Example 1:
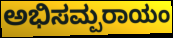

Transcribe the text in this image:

ಅಭಿಸಮ್ಪರಾಯಂ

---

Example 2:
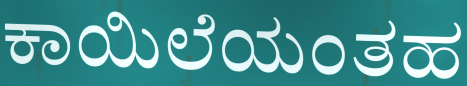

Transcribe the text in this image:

ಕಾಯಿಲೆಯಂತಹ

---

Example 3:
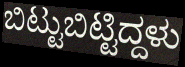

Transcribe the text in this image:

ಬಿಟ್ಟುಬಿಟ್ಟಿದ್ದಳು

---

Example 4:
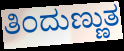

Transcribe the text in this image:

ತಿಂದುಣ್ಣುತ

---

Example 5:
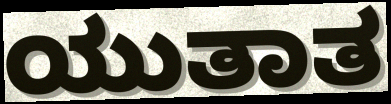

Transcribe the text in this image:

ಯುತಾತ